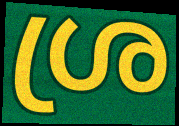
ശ്ര